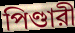
পিণ্ডারী